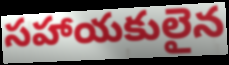
సహాయకులైన